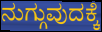
ನುಗ್ಗುವುದಕ್ಕೆ